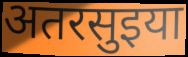
अतरसुइया